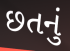
છતનું